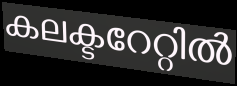
കലക്ടറേറ്റിൽ